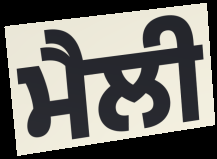
ਮੈਲੀ